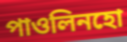
পাওলিনহো